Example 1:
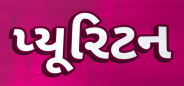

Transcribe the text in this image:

પ્યૂરિટન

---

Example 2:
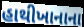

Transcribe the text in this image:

હાથીખાનાના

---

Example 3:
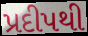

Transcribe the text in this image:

પ્રદીપથી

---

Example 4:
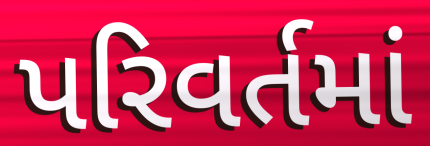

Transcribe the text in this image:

પરિવર્તમાં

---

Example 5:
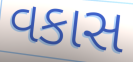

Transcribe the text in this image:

વકાસ